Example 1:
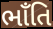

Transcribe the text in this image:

ભાઁતિ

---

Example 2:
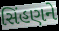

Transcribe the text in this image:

સિંહણને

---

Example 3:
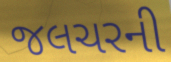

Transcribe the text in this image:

જલચરની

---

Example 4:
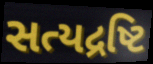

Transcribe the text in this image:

સત્યદ્રષ્ટિ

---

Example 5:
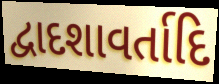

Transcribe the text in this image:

દ્વાદશાવર્તાદિ